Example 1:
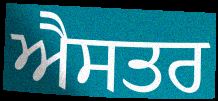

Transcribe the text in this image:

ਐਸਤਰ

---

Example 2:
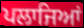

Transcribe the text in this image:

ਪਲਾਜਿਆਂ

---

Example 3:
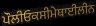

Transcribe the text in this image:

ਪੌਲੀਓਕਸੀਮੇਥਾਈਲੀਨ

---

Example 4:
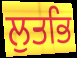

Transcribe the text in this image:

ਲੁਤਭਿ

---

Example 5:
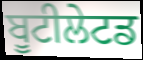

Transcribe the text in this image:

ਬੂਟੀਲੇਟਡ